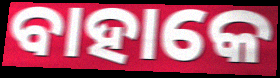
ବାହାକେ